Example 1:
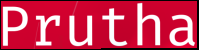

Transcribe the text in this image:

Prutha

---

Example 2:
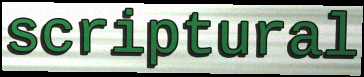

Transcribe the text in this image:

scriptural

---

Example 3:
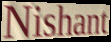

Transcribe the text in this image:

Nishant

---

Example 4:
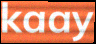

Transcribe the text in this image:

kaay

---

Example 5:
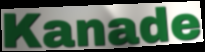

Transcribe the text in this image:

Kanade